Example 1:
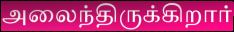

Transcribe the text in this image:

அலைந்திருக்கிறார்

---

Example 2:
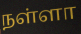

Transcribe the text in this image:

நள்ளா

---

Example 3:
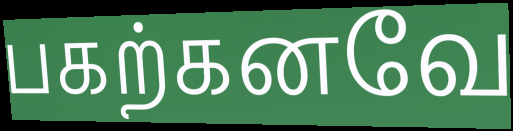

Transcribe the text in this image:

பகற்கனவே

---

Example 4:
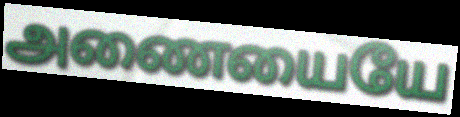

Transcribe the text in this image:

அணையையே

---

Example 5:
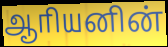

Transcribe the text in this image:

ஆரியனின்